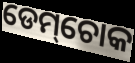
ଡେମ୍‌ଚୋକ